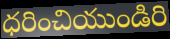
ధరించియుండిరి